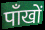
पाँखों